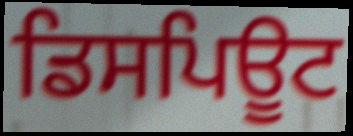
ਡਿਸਪਿਊਟ